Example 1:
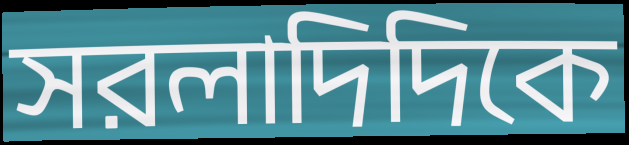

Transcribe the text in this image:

সরলাদিদিকে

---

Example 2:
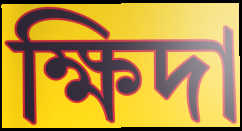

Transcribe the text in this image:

ক্ষিদা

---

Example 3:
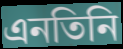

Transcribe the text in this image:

এনতিনি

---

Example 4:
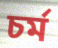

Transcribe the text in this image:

চর্ম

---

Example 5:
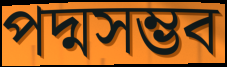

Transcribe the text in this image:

পদ্মসম্ভব